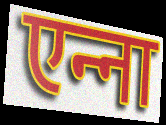
एन्ना